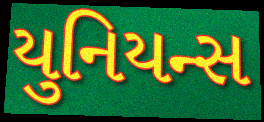
યુનિયન્સ